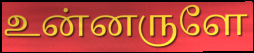
உன்னருளே